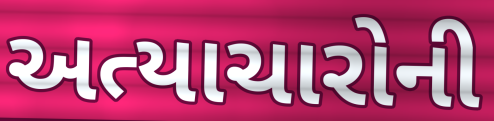
અત્યાચારોની